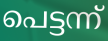
പെട്ടന്ന്